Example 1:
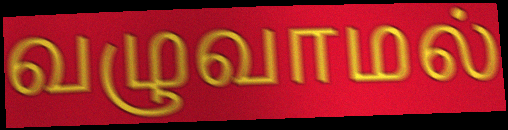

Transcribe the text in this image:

வழுவாமல்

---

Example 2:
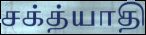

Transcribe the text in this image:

சக்த்யாதி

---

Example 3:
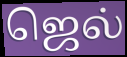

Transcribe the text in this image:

ஜெல்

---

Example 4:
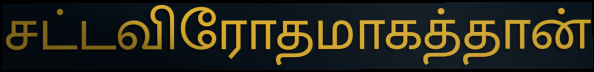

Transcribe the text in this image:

சட்டவிரோதமாகத்தான்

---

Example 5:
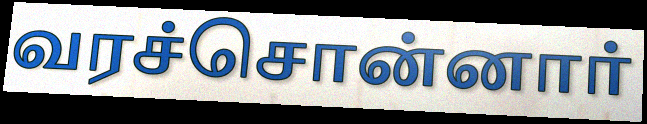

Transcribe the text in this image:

வரச்சொன்னார்